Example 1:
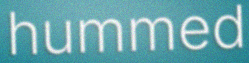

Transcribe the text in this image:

hummed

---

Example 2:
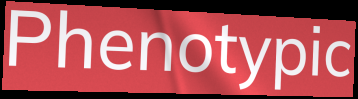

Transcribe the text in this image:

Phenotypic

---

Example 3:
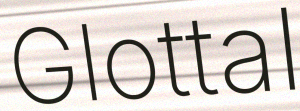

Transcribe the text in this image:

Glottal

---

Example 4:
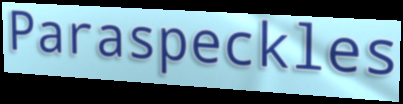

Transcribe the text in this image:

Paraspeckles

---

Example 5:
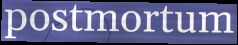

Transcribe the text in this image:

postmortum